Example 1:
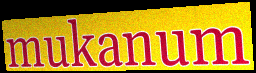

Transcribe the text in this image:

mukanum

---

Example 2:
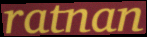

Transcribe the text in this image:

ratnan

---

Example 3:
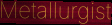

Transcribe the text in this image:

Metallurgist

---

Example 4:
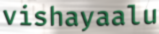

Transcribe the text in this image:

vishayaalu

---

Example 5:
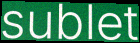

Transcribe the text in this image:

sublet